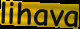
lihava